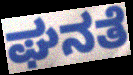
ಘನತೆ